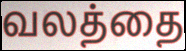
வலத்தை